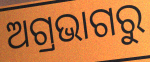
ଅଗ୍ରଭାଗରୁ